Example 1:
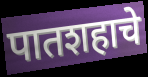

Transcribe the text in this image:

पातशहाचे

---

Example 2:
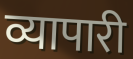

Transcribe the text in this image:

व्यापारी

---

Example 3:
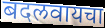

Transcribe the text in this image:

बदलवायचा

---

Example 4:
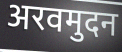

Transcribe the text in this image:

अरवमुदन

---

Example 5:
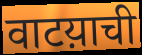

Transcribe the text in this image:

वाटय़ाची